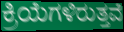
ಕ್ರಿಯೆಗಳಿರುತ್ತವೆ